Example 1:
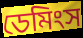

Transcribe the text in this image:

ডেমিংস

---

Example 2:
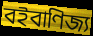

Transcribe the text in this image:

বইবাণিজ্য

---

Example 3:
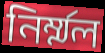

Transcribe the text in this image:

নির্ম্মল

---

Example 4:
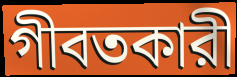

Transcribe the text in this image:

গীবতকারী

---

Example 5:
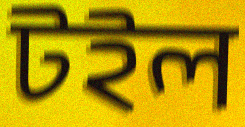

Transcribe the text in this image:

টইল